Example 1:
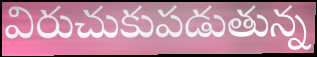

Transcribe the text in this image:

విరుచుకుపడుతున్న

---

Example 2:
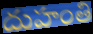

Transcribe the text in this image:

దుహంతి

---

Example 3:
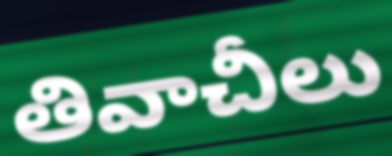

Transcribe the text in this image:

తివాచీలు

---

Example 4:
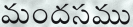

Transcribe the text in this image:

మందసము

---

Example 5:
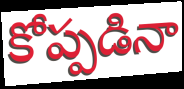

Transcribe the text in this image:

కోప్పడినా